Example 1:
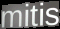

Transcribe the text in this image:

mitis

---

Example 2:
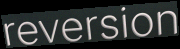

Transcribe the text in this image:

reversion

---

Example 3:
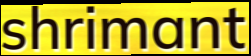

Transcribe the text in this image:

shrimant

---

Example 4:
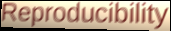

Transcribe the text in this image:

Reproducibility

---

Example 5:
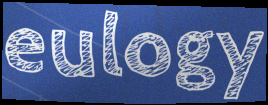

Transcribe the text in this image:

eulogy